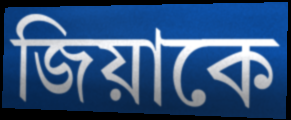
জিয়াকে